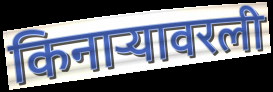
किनाऱ्यावरली